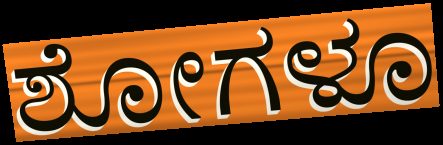
ಶೋಗಳೂ